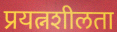
प्रयत्नशीलता